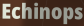
Echinops